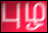
புழ